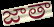
జాతా